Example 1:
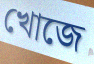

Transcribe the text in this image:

খোজে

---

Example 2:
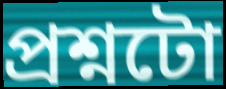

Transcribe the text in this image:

প্ৰশ্নটো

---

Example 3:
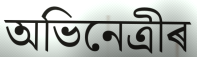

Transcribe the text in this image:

অভিনেত্ৰীৰ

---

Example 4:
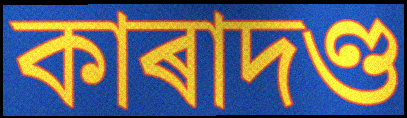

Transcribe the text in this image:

কাৰাদণ্ড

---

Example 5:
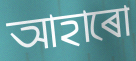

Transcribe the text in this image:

আহাৰো